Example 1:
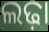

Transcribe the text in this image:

ଲଢ଼ା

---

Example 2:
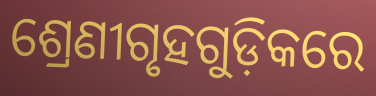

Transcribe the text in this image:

ଶ୍ରେଣୀଗୃହଗୁଡ଼ିକରେ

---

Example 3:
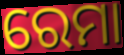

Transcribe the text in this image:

ରେମା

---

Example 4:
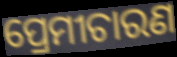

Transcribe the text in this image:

ପ୍ରେମୀଚାରଣ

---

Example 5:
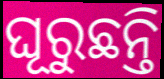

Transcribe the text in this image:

ଘୂରୁଛନ୍ତି